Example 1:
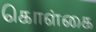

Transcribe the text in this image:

கொள்கை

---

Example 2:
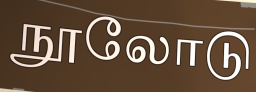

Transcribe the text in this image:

நூலோடு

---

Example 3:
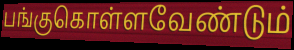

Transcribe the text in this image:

பங்குகொள்ளவேண்டும்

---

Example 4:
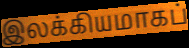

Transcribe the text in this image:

இலக்கியமாகப்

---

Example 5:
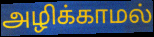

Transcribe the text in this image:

அழிக்காமல்